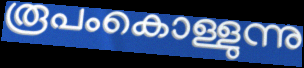
രൂപംകൊള്ളുന്നു